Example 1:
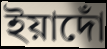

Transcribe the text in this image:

ইয়াদোঁ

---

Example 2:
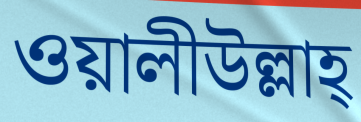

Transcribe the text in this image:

ওয়ালীউল্লাহ্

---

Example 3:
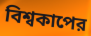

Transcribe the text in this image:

বিশ্বকাপের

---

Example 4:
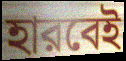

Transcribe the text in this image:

হারবেই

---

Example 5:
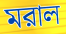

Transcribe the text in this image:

মরাল